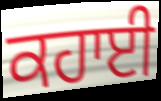
ਕਹਾਈ